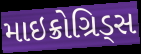
માઇક્રોગ્રિડ્સ